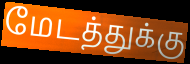
மேடத்துக்கு